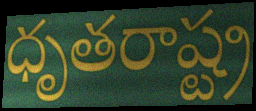
ధృతరాష్ట్ర